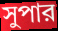
সুপার